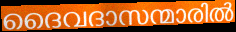
ദൈവദാസന്മാരിൽ